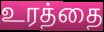
உரத்தை